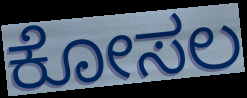
ಕೋಸಲ